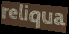
reliqua